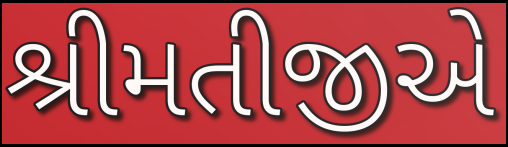
શ્રીમતીજીએ